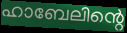
ഹാബേലിന്റെ